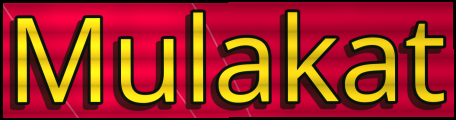
Mulakat